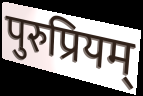
पुरुप्रियम्